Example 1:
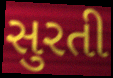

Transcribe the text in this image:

સુરતી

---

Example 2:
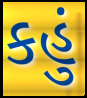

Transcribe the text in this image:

કહું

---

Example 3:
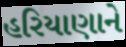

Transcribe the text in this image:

હરિયાણાને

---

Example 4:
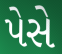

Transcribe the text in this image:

પેસે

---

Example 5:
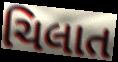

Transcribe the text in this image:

ચિલાત